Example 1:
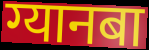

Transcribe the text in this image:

ग्यानबा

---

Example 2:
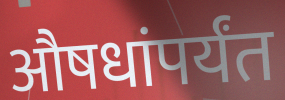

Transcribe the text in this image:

औषधांपर्यंत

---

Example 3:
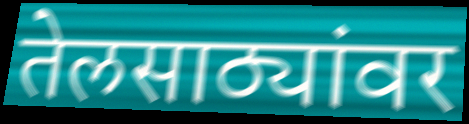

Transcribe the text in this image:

तेलसाठ्यांवर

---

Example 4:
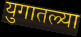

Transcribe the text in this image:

युगातल्या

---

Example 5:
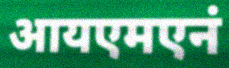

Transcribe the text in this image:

आयएमएनं